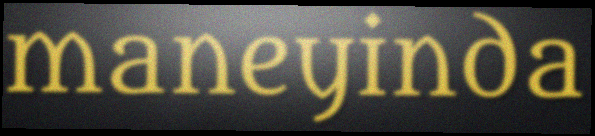
maneyinda